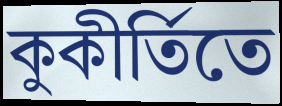
কুকীর্তিতে